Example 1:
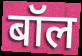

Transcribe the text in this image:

बॉल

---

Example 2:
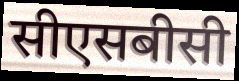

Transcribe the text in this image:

सीएसबीसी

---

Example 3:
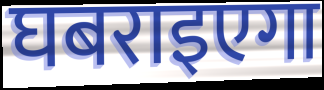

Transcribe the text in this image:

घबराइएगा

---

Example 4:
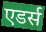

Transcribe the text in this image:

एडर्स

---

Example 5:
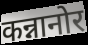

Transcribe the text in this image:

कन्नानोर